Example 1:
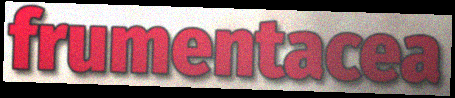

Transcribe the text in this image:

frumentacea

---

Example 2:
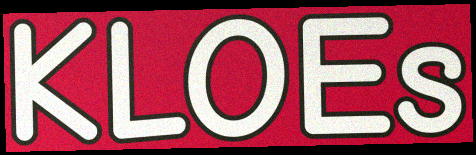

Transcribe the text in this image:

KLOEs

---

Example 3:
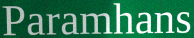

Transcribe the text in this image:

Paramhans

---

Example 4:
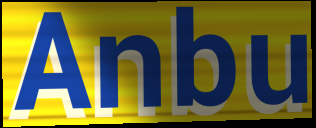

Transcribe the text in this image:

Anbu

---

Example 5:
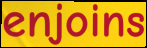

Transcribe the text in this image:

enjoins